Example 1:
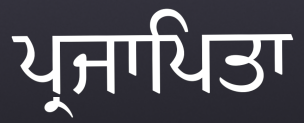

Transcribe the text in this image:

ਪ੍ਰਜਾਪਿਤਾ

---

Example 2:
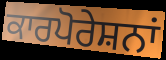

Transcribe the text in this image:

ਕਾਰਪੋਰੇਸ਼ਨਾਂ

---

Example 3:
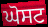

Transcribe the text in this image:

ਘੋਸਟ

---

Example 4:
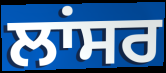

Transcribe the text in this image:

ਲਾਂਸਰ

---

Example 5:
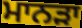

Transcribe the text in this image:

ਮਾਨੜਾ